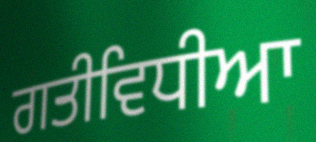
ਗਤੀਵਿਧੀਆ